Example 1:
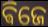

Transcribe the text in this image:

ଵିଜେ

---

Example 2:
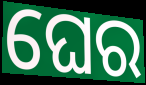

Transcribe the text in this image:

ଘେର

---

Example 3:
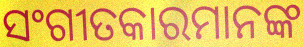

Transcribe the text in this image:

ସଂଗୀତକାରମାନଙ୍କ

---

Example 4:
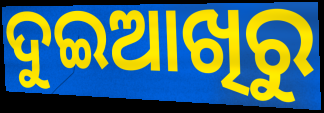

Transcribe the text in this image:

ଦୁଇଆଖିରୁ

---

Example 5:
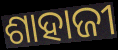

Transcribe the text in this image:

ଶାହାଜୀ